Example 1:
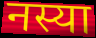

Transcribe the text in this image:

नस्या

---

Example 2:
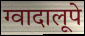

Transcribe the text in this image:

ग्वादालूपे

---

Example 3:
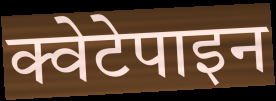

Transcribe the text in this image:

क्वेटेपाइन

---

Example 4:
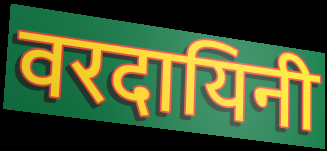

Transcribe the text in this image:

वरदायिनी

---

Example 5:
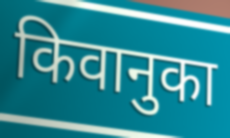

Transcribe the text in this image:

किवानुका